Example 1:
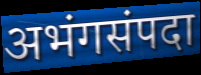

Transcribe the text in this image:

अभंगसंपदा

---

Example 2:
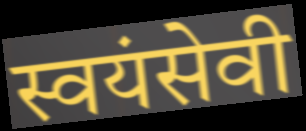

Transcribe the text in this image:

स्वयंसेवी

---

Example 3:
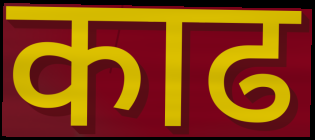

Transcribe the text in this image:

काढ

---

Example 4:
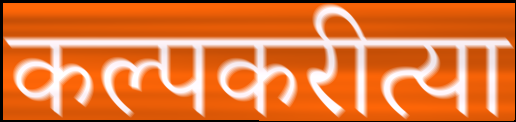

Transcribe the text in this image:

कल्पकरीत्या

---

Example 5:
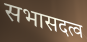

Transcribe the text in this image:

सभासदत्व